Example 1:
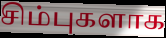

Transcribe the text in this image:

சிம்புகளாக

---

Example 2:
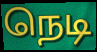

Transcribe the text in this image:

நெடி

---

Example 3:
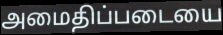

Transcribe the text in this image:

அமைதிப்படையை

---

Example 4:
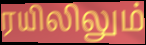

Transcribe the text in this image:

ரயிலிலும்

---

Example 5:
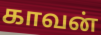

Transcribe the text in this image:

காவன்